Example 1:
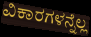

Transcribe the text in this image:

ವಿಕಾರಗಳನ್ನೆಲ್ಲ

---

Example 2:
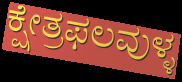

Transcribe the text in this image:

ಕ್ಷೇತ್ರಫಲವುಳ್ಳ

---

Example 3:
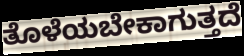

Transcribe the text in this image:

ತೊಳೆಯಬೇಕಾಗುತ್ತದೆ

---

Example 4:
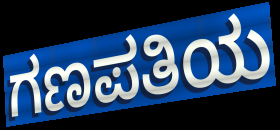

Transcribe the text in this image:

ಗಣಪತಿಯ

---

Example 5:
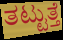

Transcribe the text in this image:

ತಟ್ಟುತ್ತೆ